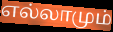
எல்லாமும்